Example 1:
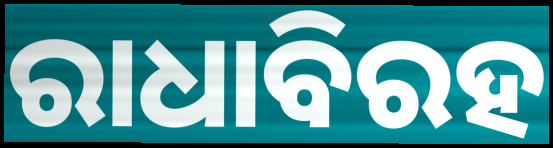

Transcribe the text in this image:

ରାଧାବିରହ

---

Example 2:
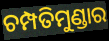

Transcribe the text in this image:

ଚମ୍ପତିମୁଣ୍ଡାର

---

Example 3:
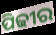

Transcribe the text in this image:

ପିଢୀର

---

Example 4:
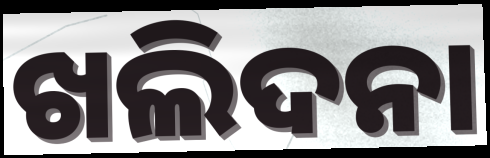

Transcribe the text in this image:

ଖଲିଦନା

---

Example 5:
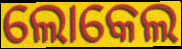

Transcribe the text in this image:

ଲୋକେଲ